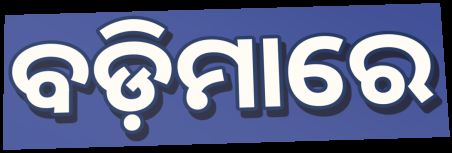
ବଡ଼ିମାରେ